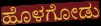
ಹೊಳಗೋಡು